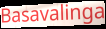
Basavalinga